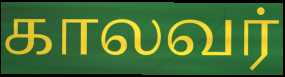
காலவர்